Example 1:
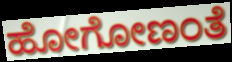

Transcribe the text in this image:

ಹೋಗೋಣಂತೆ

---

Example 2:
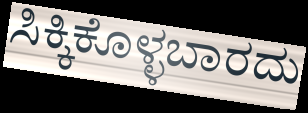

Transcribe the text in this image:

ಸಿಕ್ಕಿಕೊಳ್ಳಬಾರದು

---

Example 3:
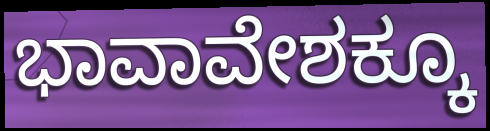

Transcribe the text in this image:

ಭಾವಾವೇಶಕ್ಕೂ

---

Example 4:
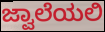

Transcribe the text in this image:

ಜ್ವಾಲೆಯಲಿ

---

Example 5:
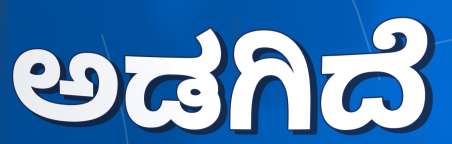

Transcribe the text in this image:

ಅಡಗಿದೆ